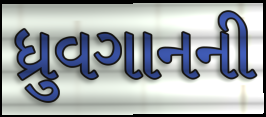
ધ્રુવગાનની